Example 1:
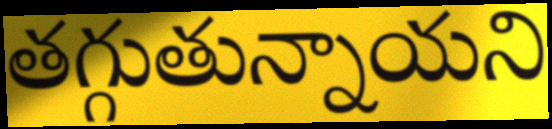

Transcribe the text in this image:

తగ్గుతున్నాయని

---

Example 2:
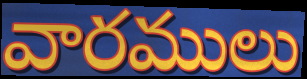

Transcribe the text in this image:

వారములు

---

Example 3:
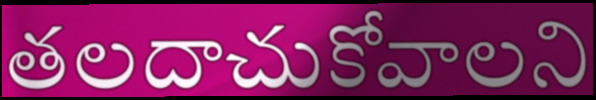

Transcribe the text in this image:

తలదాచుకోవాలని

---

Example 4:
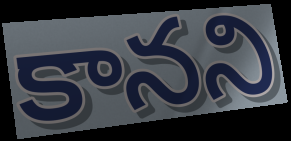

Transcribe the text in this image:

కానని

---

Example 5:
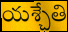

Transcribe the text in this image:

యశ్చేతి